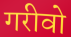
गरीवो